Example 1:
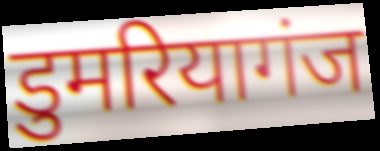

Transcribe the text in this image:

डुमरियागंज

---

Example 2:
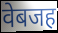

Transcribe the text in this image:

वेबजह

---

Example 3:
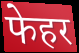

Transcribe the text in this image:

फेहर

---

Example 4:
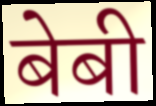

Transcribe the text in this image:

बेबी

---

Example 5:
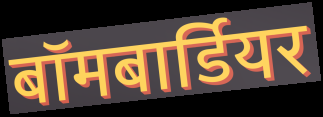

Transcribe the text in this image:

बॉमबार्डियर